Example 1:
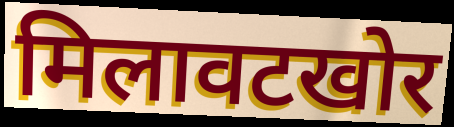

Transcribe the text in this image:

मिलावटखोर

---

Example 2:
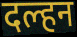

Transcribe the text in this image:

दल्हन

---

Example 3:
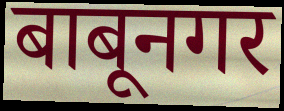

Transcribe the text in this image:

बाबूनगर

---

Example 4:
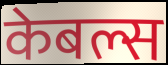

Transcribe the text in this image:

केबल्स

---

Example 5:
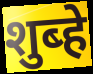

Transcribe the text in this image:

शुब्हे